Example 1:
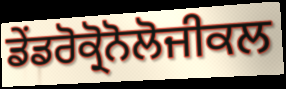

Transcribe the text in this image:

ਡੇਂਡਰੋਕ੍ਰੋਨੋਲੋਜੀਕਲ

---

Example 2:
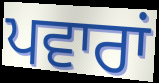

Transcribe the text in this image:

ਪਵਾਰਾਂ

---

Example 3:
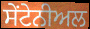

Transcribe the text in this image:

ਸੇਂਟੇਨੀਅਲ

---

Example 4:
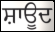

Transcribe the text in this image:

ਸ਼ਾਊਦ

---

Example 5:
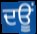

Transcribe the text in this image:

ਦਊਂ